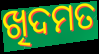
ଖିଦମତ